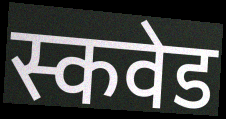
स्कवेड